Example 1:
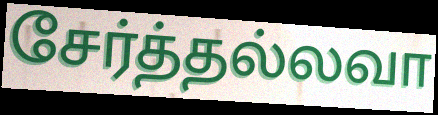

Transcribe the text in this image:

சேர்த்தல்லவா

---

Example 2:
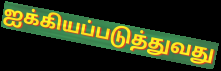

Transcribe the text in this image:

ஐக்கியப்படுத்துவது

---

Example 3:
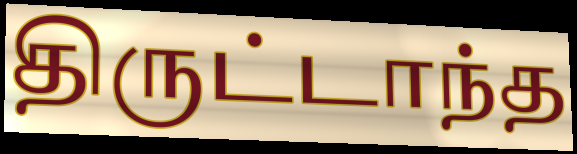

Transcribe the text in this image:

திருட்டாந்த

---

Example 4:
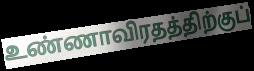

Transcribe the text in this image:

உண்ணாவிரதத்திற்குப்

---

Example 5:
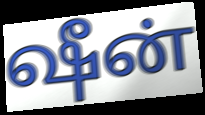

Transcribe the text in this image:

ஷீன்